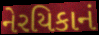
નેરયિકાનં